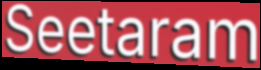
Seetaram